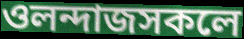
ওলন্দাজসকলে